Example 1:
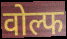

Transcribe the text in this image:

वोल्फ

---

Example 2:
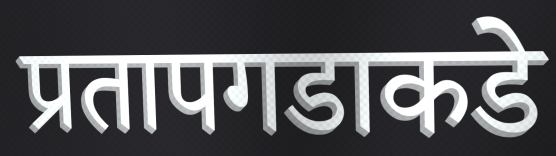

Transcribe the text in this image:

प्रतापगडाकडे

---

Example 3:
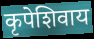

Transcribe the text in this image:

कृपेशिवाय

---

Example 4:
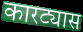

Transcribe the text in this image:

कारट्यास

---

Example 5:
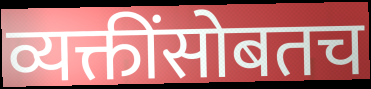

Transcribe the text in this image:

व्यक्तींसोबतच